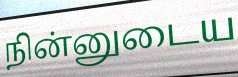
நின்னுடைய